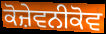
ਕੋਜ਼ੇਵਨੀਕੋਵ